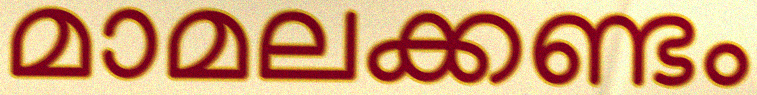
മാമലക്കണ്ടം